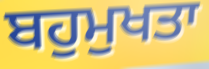
ਬਹੁਮੁਖਤਾ